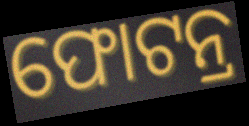
ଫୋଟନ୍ର